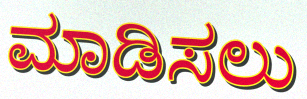
ಮಾಡಿಸಲು